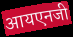
आयएनजी